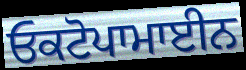
ਓਕਟੋਪਾਮਾਈਨ